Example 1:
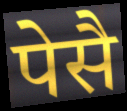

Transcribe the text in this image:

पेसै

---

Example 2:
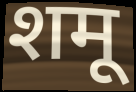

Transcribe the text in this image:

शमू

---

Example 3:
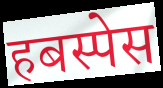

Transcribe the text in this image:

हबस्पेस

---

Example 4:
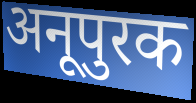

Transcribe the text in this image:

अनूपुरक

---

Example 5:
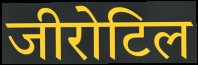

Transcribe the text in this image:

जीरोटिल